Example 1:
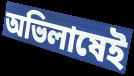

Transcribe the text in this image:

অভিলাষেই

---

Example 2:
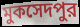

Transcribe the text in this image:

মুকসেদপুর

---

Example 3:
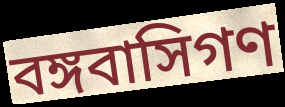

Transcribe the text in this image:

বঙ্গবাসিগণ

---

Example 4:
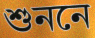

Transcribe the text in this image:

শুননে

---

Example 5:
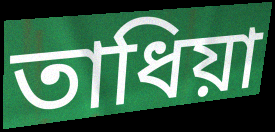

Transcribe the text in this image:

তাধিয়া